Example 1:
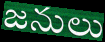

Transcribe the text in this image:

జనులు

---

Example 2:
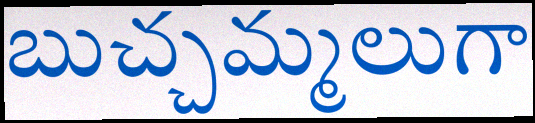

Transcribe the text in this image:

బుచ్చమ్మలుగా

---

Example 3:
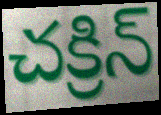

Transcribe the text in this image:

చక్రిన్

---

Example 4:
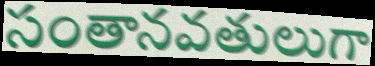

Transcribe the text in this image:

సంతానవతులుగా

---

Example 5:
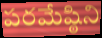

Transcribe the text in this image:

పరమేష్ఠిని